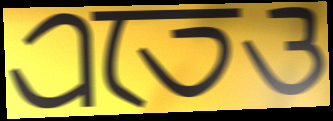
এতেও